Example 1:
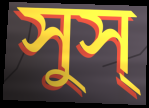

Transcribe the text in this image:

সুস্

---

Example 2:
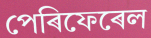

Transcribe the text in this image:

পেৰিফেৰেল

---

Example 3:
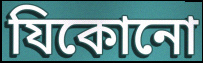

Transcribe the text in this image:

যিকোনো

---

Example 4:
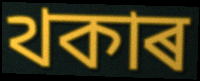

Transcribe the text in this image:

থকাৰ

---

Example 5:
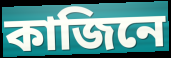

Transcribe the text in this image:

কাজিনে